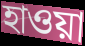
হাওয়া